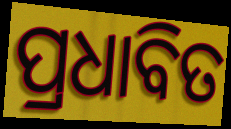
ପ୍ରଧାବିତ